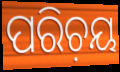
ପରିଚ଼ୟ